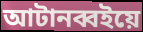
আটানব্বইয়ে